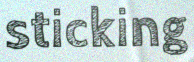
sticking